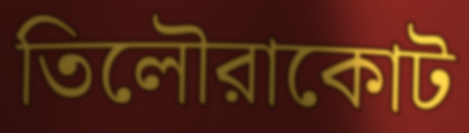
তিলৌরাকোট